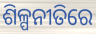
ଶିଳ୍ପନୀତିରେ